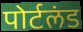
पोर्टलंड